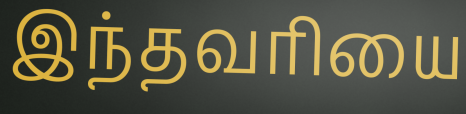
இந்தவரியை